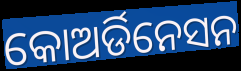
କୋଅର୍ଡିନେସନ